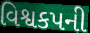
વિશ્વકપની